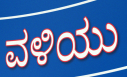
ವಳಿಯು